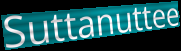
Suttanuttee